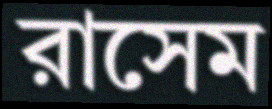
রাসেম